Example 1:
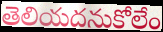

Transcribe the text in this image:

తెలియదనుకోలేం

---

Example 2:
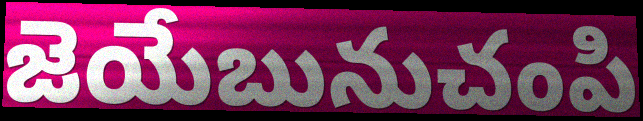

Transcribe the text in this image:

జెయేబునుచంపి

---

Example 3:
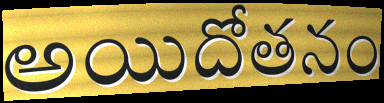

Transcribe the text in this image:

అయిదోతనం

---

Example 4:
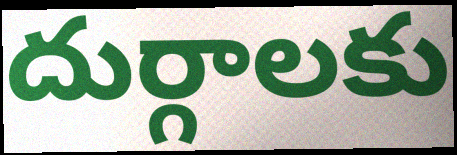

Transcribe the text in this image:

దుర్గాలకు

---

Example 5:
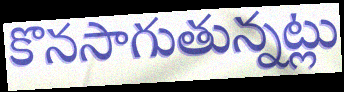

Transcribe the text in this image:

కొనసాగుతున్నట్లు